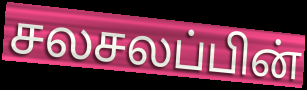
சலசலப்பின்